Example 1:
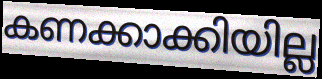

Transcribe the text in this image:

കണക്കാക്കിയില്ല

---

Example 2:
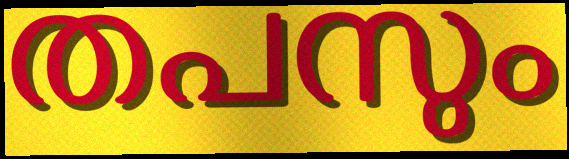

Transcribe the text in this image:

തപസും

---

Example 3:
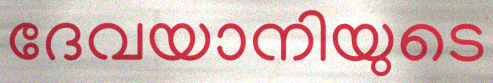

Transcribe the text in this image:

ദേവയാനിയുടെ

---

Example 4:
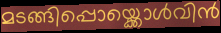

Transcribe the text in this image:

മടങ്ങിപ്പൊയ്ക്കൊൾവിൻ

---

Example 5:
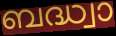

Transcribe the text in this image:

ബദ്ധ്വാ